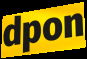
dpon